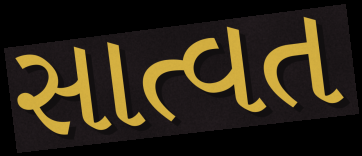
સાત્વત